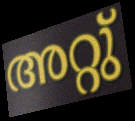
അറ്റു്